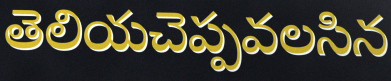
తెలియచెప్పవలసిన